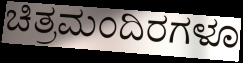
ಚಿತ್ರಮಂದಿರಗಳೂ